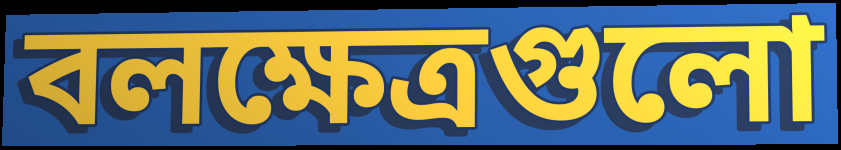
বলক্ষেত্রগুলো